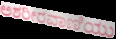
ಅಶರೀರವಾಣಿಯು